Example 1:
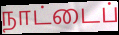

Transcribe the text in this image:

நாட்டைப்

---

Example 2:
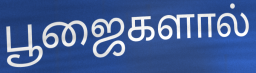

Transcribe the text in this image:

பூஜைகளால்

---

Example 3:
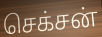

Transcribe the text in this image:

செக்சன்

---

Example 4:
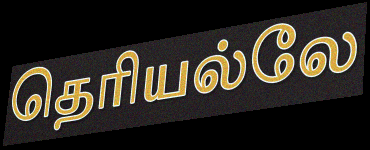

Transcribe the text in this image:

தெரியல்லே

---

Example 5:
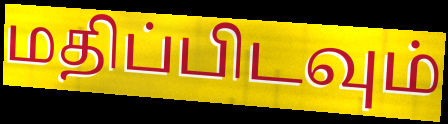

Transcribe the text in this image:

மதிப்பிடவும்